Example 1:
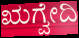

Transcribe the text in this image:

ಋಗ್ವೇದಿ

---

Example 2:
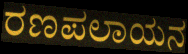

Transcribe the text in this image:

ರಣಪಲಾಯನ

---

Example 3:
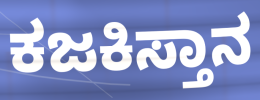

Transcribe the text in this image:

ಕಜಕಿಸ್ತಾನ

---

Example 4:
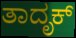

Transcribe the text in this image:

ತಾದೃಕ್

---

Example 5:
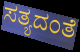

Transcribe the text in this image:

ಸತ್ಯದಂತೆ